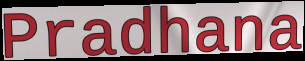
Pradhana